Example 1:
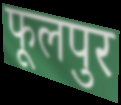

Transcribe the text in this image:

फूलपुर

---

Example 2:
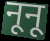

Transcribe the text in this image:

नूनू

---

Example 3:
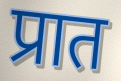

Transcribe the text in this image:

प्रात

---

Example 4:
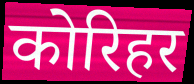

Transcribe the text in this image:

कोरिहर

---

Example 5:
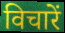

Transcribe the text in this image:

विचारें